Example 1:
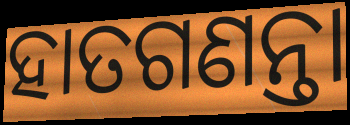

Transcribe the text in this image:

ହାତଗଣନ୍ତା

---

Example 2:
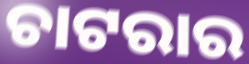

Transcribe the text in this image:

ଚାଟରାର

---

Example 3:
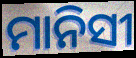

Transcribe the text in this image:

ମାନିସୀ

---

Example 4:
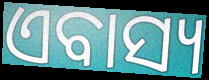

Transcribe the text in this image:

ଏବାସ୍ୟ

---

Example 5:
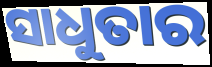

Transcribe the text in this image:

ସାଧୁତାର